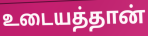
உடையத்தான்